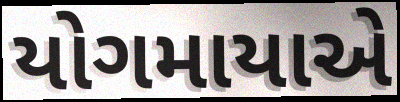
યોગમાયાએ